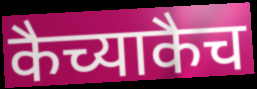
कैच्याकैच